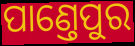
ପାଣ୍ତେପୁର